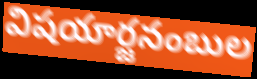
విషయార్జనంబుల